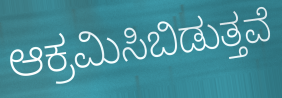
ಆಕ್ರಮಿಸಿಬಿಡುತ್ತವೆ